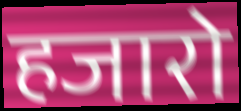
हजारो